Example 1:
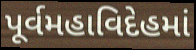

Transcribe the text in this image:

પૂર્વમહાવિદેહમાં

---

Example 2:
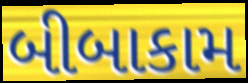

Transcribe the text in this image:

બીબાકામ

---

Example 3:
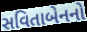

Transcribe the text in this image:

સવિતાબેનનો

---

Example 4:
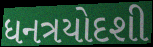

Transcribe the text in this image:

ધનત્રયોદશી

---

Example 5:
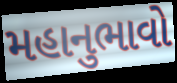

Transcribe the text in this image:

મહાનુભાવો